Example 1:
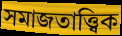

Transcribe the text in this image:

সমাজতাত্ত্বিক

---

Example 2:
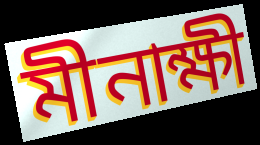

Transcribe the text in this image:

মীনাক্ষী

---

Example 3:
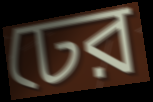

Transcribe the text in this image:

ঢের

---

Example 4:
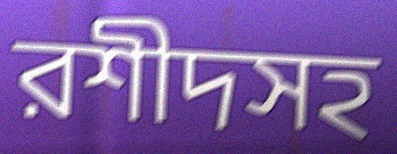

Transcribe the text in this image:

রশীদসহ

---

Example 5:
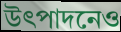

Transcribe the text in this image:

উৎপাদনেও